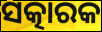
ସତ୍କାରକ